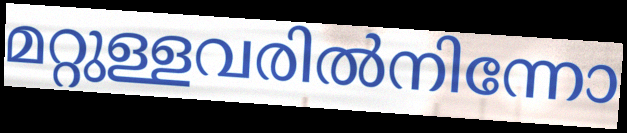
മറ്റുള്ളവരിൽനിന്നോ